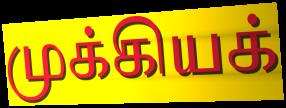
முக்கியக்